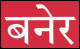
बनेर